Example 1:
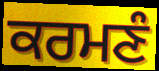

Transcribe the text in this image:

ਕਰਮਣੰ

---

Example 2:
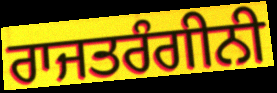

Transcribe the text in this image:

ਰਾਜਤਰੰਗੀਨੀ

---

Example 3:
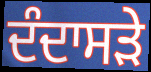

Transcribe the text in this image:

ਦੰਦਾਸੜੇ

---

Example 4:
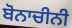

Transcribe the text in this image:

ਬੋਨਾਚੀਨੀ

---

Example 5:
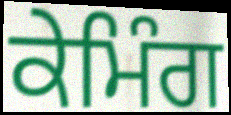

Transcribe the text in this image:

ਕੇਮਿੰਗ